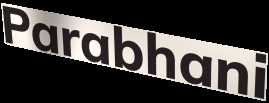
Parabhani